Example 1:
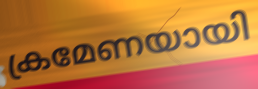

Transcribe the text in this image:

ക്രമേണയായി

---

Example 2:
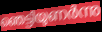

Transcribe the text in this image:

ഞെട്ടിയുണർന്നു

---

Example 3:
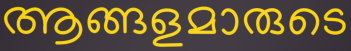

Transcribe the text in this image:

ആങ്ങളമാരുടെ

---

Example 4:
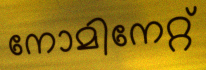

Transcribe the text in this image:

നോമിനേറ്റ്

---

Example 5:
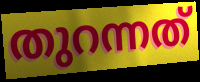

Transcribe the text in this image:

തുറന്നത്